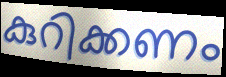
കുറിക്കണം